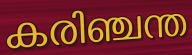
കരിഞ്ചന്ത